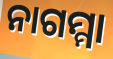
ନାଗମ୍ମା